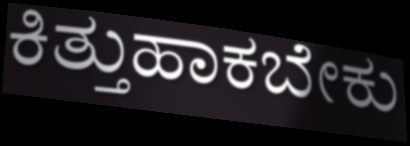
ಕಿತ್ತುಹಾಕಬೇಕು